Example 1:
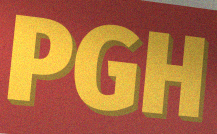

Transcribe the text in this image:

PGH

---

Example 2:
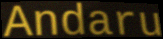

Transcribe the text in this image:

Andaru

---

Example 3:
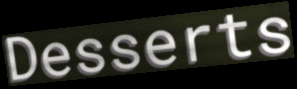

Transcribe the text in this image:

Desserts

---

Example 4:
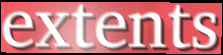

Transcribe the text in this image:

extents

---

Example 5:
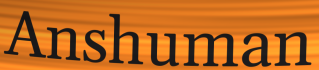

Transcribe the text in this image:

Anshuman